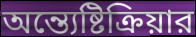
অন্ত্যেষ্টিক্রিয়ার